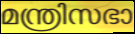
മന്ത്രിസഭാ